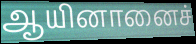
ஆயினானைச்